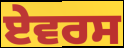
ਏਵਰਸ